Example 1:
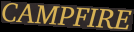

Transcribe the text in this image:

CAMPFIRE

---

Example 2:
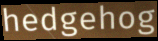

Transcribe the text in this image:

hedgehog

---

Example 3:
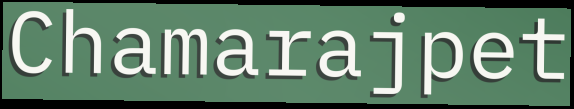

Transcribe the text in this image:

Chamarajpet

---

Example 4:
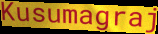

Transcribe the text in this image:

Kusumagraj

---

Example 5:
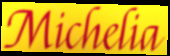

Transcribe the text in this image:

Michelia